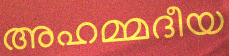
അഹമ്മദീയ